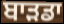
ਬਾੜਡਾ